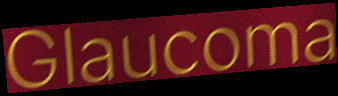
Glaucoma